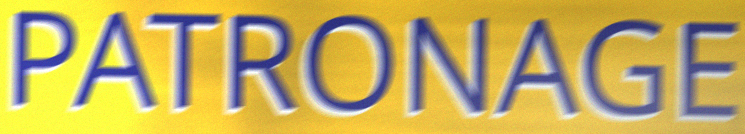
PATRONAGE